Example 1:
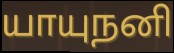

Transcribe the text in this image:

யாயுநனி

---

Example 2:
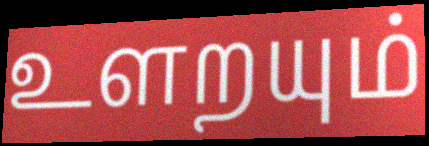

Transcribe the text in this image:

உளறயும்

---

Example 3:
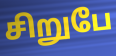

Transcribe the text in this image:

சிறுபே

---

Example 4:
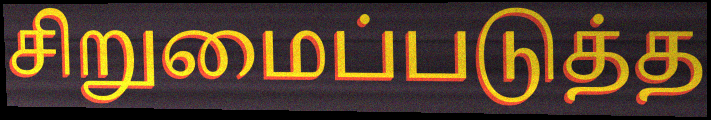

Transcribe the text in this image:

சிறுமைப்படுத்த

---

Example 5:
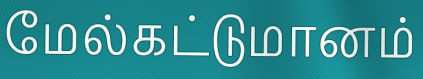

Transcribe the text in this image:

மேல்கட்டுமானம்